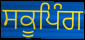
ਸਕੂਪਿੰਗ